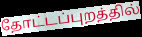
தோட்டப்புறத்தில்